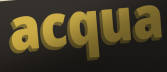
acqua